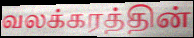
வலக்கரத்தின்